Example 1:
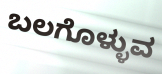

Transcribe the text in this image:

ಬಲಗೊಳ್ಳುವ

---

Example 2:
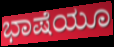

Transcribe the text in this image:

ಭಾಷೆಯೂ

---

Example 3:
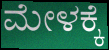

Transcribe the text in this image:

ಮೇಳಕ್ಕೆ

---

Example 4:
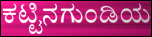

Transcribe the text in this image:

ಕಟ್ಟಿನಗುಂಡಿಯ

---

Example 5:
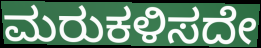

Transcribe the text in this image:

ಮರುಕಳಿಸದೇ